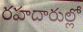
రహదారుల్లో